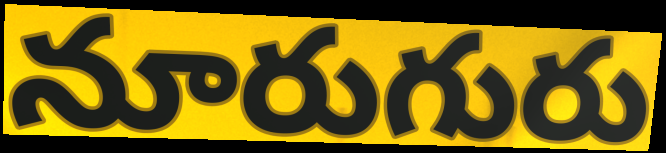
నూరుగురు